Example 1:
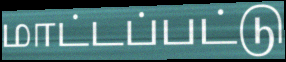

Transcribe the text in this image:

மாட்டப்பட்டு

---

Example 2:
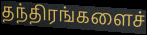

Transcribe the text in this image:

தந்திரங்களைச்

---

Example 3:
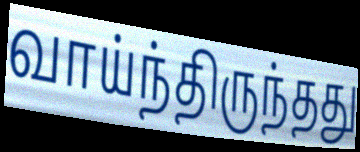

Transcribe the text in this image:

வாய்ந்திருந்தது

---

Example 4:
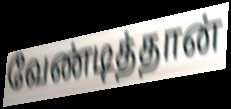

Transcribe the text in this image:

வேண்டித்தான்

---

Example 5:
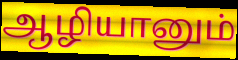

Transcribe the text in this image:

ஆழியானும்